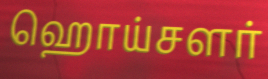
ஹொய்சளர்